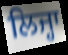
ਲਿਜ੍ਹਾ